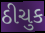
ઠીચુક